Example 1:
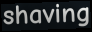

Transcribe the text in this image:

shaving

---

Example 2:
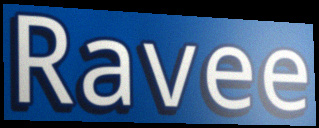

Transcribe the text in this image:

Ravee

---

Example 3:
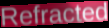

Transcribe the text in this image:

Refracted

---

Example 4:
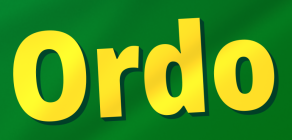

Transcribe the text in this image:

Ordo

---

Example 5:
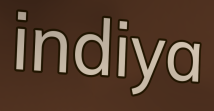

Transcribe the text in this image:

indiya